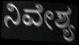
ನಿವೇಶ್ಯ